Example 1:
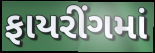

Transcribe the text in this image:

ફાયરીંગમાં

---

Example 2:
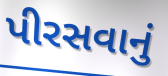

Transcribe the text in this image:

પીરસવાનું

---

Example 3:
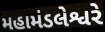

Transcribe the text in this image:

મહામંડલેશ્વરે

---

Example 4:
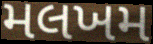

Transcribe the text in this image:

મલખમ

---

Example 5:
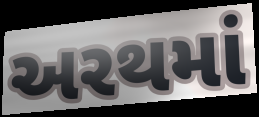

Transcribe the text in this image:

અરથમાં